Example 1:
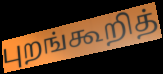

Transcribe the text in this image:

புறங்கூறித்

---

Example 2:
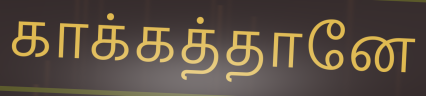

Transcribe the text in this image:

காக்கத்தானே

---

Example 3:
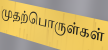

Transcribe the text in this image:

முதற்பொருள்கள்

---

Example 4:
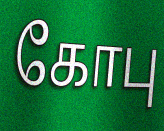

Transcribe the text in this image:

கோபு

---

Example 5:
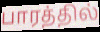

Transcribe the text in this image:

பாரத்தில்